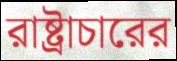
রাষ্ট্রাচারের